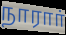
நாரார்